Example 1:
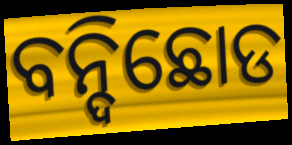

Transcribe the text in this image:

ବନ୍ଦିଛୋଡ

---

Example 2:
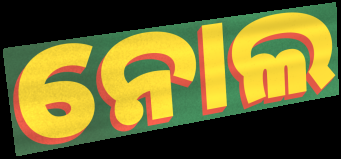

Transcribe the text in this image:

ନୋଲ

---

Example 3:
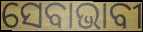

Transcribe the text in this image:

ସେବାଭାବୀ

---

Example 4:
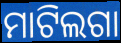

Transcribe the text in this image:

ମାଟିଲଗା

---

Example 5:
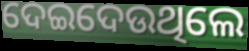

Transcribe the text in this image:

ଦେଇଦେଉଥିଲେ